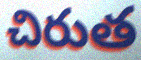
చిరుత